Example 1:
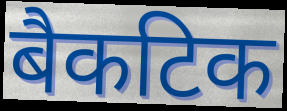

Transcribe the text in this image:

बैकटिक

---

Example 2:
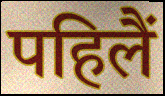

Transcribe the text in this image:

पहिलैं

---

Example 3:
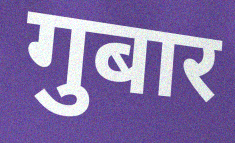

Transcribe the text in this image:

गुबार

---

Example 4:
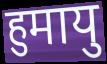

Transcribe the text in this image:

हुमायु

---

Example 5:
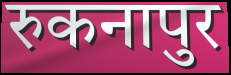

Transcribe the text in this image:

रुकनापुर